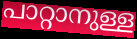
പാറ്റാനുള്ള